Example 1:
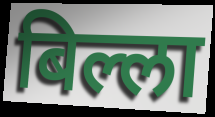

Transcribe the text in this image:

बिल्ला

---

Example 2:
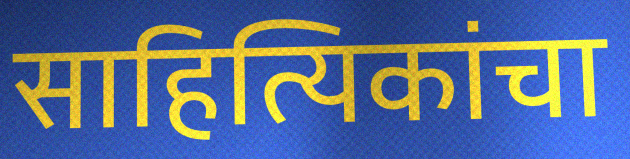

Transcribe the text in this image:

साहित्यिकांचा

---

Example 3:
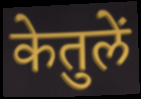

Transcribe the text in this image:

केतुलें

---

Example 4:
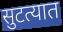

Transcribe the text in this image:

सुटत्यात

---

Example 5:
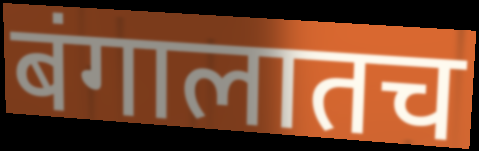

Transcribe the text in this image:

बंगालातच